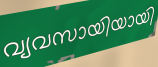
വ്യവസായിയായി